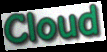
Cloud